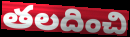
తలదించి